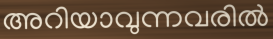
അറിയാവുന്നവരിൽ